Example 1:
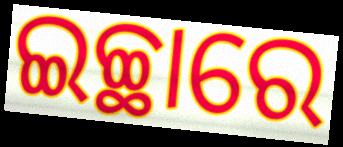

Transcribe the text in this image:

ଇଚ୍ଛାରେ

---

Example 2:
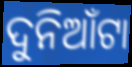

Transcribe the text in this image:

ଦୁନିଆଁଟା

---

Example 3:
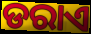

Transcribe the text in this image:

ଡରାଏ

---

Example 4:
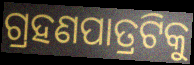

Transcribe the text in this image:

ଗ୍ରହଣପାତ୍ରଟିକୁ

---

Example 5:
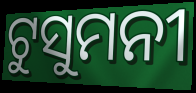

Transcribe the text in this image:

ଟୁସୁମନୀ